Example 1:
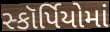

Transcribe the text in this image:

સ્કૉર્પિયોમાં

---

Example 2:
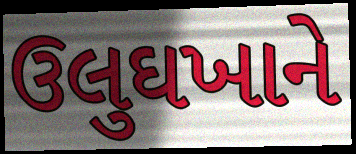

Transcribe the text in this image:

ઉલુઘખાને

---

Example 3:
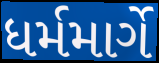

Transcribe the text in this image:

ધર્મમાર્ગે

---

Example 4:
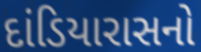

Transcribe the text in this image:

દાંડિયારાસનો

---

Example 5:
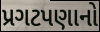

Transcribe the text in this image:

પ્રગટપણાનો